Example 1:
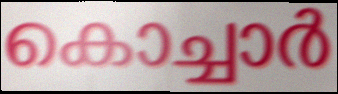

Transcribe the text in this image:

കൊച്ചാർ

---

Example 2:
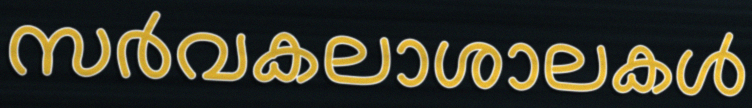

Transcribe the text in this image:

സർവകലാശാലകൾ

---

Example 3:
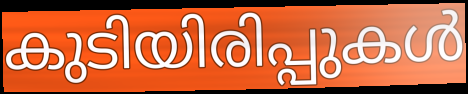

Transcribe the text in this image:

കുടിയിരിപ്പുകൾ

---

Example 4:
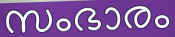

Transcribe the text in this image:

സംഭാരം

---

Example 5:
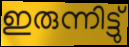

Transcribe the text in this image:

ഇരുന്നിട്ടു്